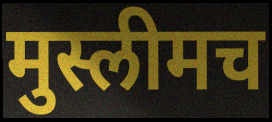
मुस्लीमच